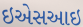
ઇએસઆઇ